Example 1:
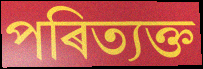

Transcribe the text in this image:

পৰিত্যক্ত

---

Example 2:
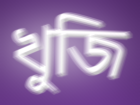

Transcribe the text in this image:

খুজি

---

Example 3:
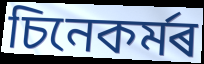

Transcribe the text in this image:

চিনেকৰ্মৰ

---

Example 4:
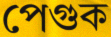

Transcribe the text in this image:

পেগুক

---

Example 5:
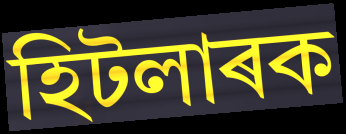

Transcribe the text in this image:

হিটলাৰক